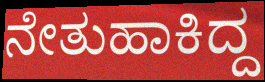
ನೇತುಹಾಕಿದ್ದ